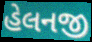
હેલનજી